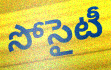
సోసైటీ